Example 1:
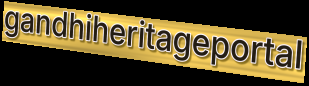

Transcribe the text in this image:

gandhiheritageportal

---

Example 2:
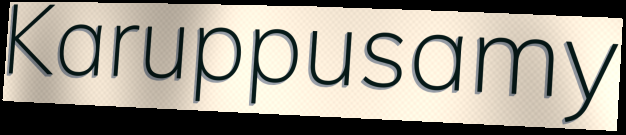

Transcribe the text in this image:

Karuppusamy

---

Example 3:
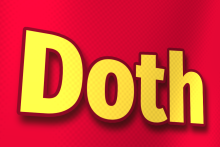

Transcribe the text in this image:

Doth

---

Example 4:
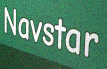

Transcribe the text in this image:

Navstar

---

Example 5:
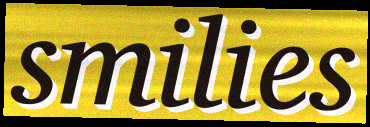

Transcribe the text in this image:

smilies